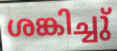
ശങ്കിച്ചു്